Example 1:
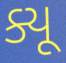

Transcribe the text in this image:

ક્યૂ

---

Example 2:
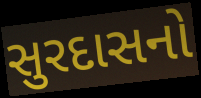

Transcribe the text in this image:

સુરદાસનો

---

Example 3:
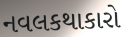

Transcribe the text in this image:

નવલકથાકારો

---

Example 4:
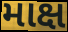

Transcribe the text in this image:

માક્ષ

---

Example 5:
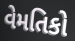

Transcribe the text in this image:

વેમતિકો